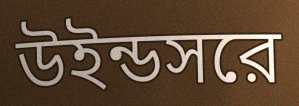
উইন্ডসরে